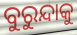
ବୁରୁନ୍ଦାକୁ